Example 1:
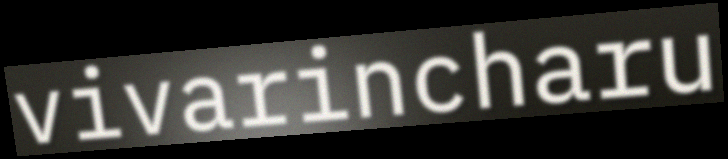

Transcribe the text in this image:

vivarincharu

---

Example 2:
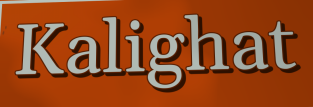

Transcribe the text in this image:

Kalighat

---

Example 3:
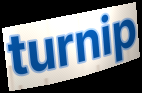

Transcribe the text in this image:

turnip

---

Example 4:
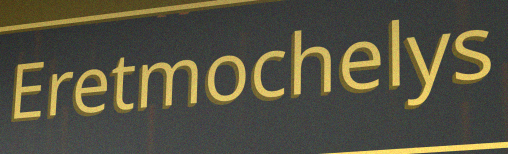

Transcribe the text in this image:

Eretmochelys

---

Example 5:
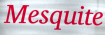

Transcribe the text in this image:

Mesquite